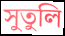
সুতুলি